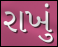
રાખું